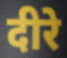
दीरे